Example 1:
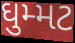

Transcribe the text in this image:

ઘુમ્મટ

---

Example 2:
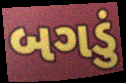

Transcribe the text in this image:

બગડું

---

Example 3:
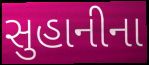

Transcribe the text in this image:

સુહાનીના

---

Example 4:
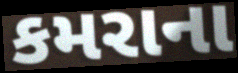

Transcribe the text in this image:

કમરાના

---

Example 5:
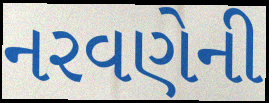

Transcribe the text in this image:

નરવણેની